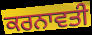
ਕਰਨਾਵਤੀ